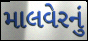
માલવેરનું